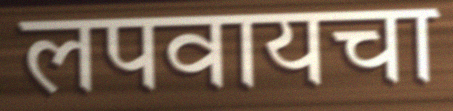
लपवायचा